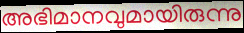
അഭിമാനവുമായിരുന്നു